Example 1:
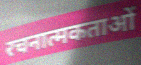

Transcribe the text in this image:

रचनात्मकताओं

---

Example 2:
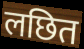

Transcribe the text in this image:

लछित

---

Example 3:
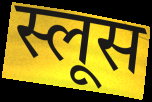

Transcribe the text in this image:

स्लूस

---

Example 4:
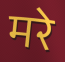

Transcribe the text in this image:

मरे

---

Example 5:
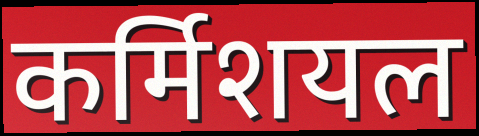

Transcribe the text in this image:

कर्मिशयल